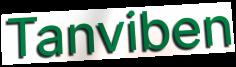
Tanviben